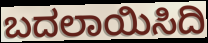
ಬದಲಾಯಿಸಿದಿ